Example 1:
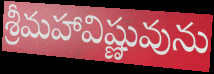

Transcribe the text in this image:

శ్రీమహావిష్ణువును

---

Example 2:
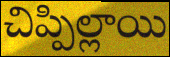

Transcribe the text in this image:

చిప్పిల్లాయి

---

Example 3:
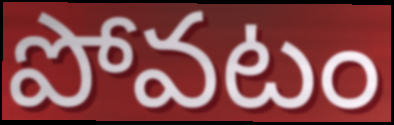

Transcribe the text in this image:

పోవటం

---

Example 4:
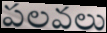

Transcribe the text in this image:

పలవలు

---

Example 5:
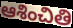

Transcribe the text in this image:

ఆశించితి